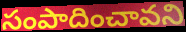
సంపాదించావని